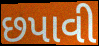
છપાવી